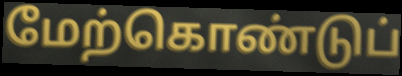
மேற்கொண்டுப்